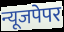
न्‍यूजपेपर